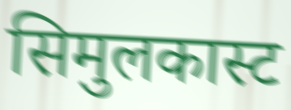
सिमुलकास्ट